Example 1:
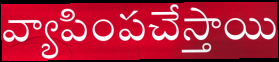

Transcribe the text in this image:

వ్యాపింపచేస్తాయి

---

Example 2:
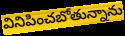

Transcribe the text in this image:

వినిపించబోతున్నాను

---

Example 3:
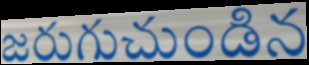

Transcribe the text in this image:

జరుగుచుండిన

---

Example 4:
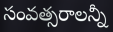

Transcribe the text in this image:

సంవత్సరాలన్నీ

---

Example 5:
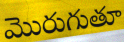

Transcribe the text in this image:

మొరుగుతూ